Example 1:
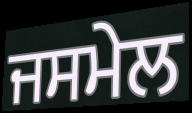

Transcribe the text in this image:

ਜਸਮੇਲ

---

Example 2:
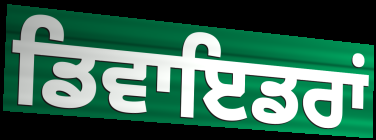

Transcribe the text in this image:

ਡਿਵਾਇਡਰਾਂ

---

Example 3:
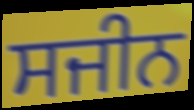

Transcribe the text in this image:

ਸਜੀਨ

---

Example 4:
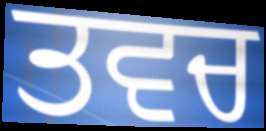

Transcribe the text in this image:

ਤਵਚ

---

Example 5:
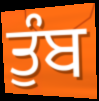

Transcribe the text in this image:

ਤੁੰਬ